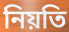
নিয়তি